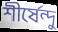
শীর্ষেন্দু